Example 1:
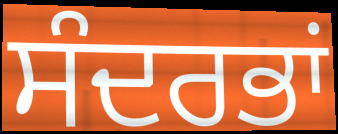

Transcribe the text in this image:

ਸੰਦਰਭਾਂ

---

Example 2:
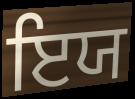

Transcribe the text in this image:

ਇਯ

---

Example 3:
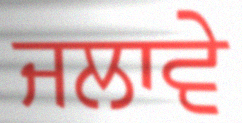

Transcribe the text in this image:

ਜਲਾਵੇ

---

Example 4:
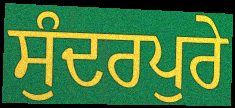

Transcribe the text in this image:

ਸੁੰਦਰਪੁਰੇ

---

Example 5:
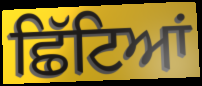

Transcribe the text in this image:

ਛਿੱਟਿਆਂ